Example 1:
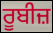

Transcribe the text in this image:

ਰੂਬੀਜ਼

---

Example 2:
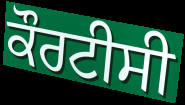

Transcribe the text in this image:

ਕੌਰਟੀਸੀ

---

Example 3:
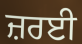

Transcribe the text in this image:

ਜ਼ਰਈ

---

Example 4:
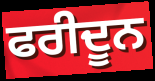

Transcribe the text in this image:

ਫਰੀਦੂਨ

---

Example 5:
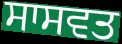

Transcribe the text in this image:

ਸਾਸਵਤ